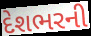
દેશભરની